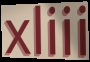
xliii